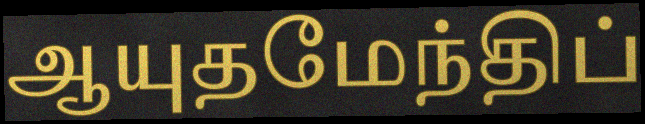
ஆயுதமேந்திப்